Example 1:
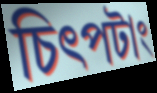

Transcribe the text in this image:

চিৎপটাং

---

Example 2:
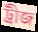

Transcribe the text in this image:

ট্রীজ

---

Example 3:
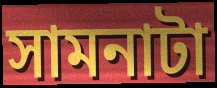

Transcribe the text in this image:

সামনাটা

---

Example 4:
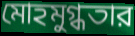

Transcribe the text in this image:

মোহমুগ্ধতার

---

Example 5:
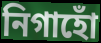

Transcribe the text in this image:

নিগাহোঁ